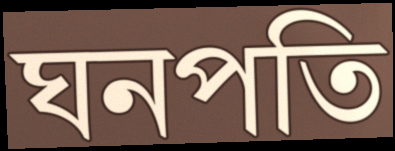
ঘনপতি